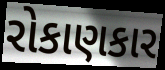
રોકાણકાર